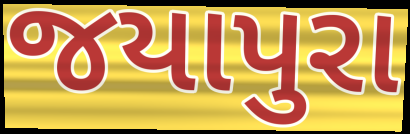
જયાપુરા